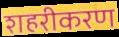
शहरीकरण